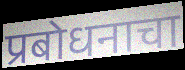
प्रबोधनाचा